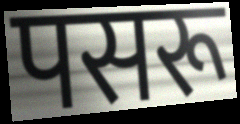
पसरू